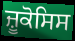
ਜ਼ੂਕੋਸਿਸ